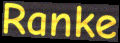
Ranke